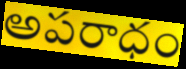
అపరాధం